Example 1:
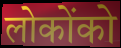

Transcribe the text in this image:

लोकोंको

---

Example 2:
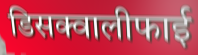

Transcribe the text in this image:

डिसक्वालीफाई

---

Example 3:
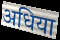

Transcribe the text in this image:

अधिया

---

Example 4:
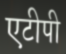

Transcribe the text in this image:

एटीपी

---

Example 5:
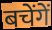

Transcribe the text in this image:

बचेंगें